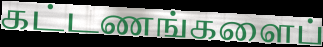
கட்டணங்களைப்